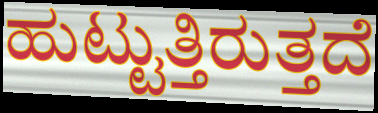
ಹುಟ್ಟುತ್ತಿರುತ್ತದೆ